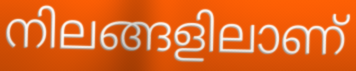
നിലങ്ങളിലാണ്